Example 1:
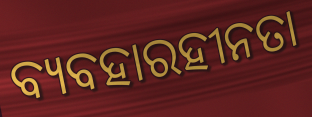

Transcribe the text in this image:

ବ୍ୟବହାରହୀନତା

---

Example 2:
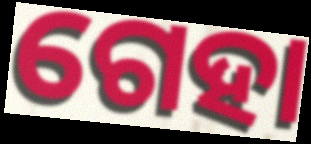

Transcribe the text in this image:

ଗେହା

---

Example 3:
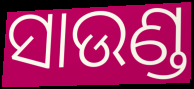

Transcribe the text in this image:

ସାଉଣ୍ଡ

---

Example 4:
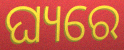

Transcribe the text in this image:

ଘ୍ୟରେ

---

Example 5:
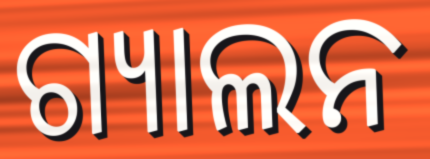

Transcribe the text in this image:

ଗ୍ୟାଲନ